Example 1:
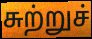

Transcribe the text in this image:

சுற்றுச்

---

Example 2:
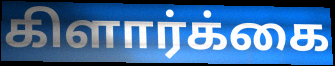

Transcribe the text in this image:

கிளார்க்கை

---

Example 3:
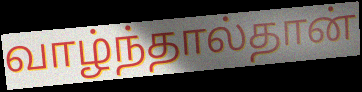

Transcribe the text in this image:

வாழ்ந்தால்தான்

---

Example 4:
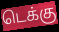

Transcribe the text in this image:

டெக்கு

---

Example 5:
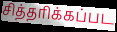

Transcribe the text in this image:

சித்தரிக்கப்பட